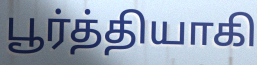
பூர்த்தியாகி